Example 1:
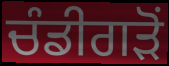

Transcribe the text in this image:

ਚੰਡੀਗੜੋਂ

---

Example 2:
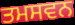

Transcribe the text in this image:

ਤਮਸਵਨ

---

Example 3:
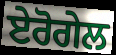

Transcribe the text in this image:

ਏਰੋਗੇਲ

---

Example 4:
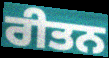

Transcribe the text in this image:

ਰੀਤਨ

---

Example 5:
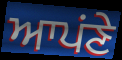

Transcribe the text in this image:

ਆਪਂਣੇ